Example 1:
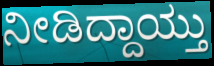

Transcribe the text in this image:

ನೀಡಿದ್ದಾಯ್ತು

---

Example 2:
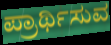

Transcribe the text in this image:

ಪ್ರಾರ್ಥಿಸುವ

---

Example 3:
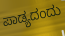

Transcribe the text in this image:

ಪಾಡ್ಯದಂದು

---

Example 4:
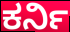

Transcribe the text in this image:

ಕರ್ನಿ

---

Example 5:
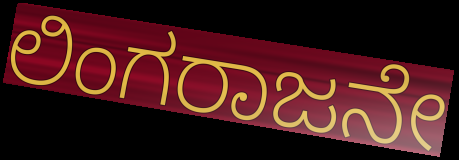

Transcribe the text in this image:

ಲಿಂಗರಾಜನೇ